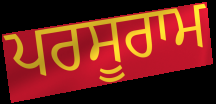
ਪਰਸੂਰਾਮ